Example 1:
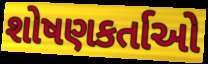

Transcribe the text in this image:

શોષણકર્તાઓ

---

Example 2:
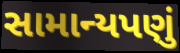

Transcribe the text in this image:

સામાન્યપણું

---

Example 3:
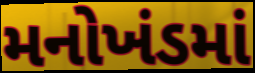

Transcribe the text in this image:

મનોખંડમાં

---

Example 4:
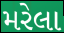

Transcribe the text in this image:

મરેલા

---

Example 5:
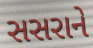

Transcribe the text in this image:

સસરાને